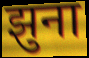
झुना